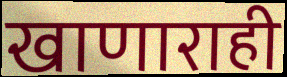
खाणाराही